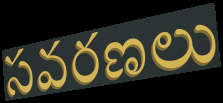
సవరణలు